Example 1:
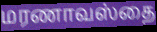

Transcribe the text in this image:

மரணாவஸ்தை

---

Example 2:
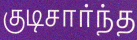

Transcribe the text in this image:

குடிசார்ந்த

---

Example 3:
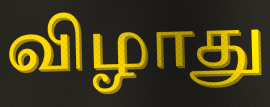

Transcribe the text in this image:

விழாது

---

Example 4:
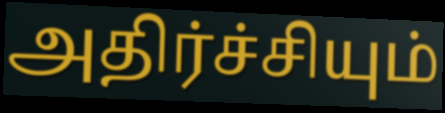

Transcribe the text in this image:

அதிர்ச்சியும்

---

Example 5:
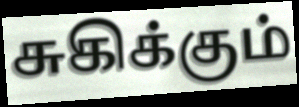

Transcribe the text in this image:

சுகிக்கும்